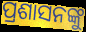
ପ୍ରଶାସନଙ୍କୁ